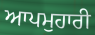
ਆਪਮੁਹਾਰੀ